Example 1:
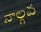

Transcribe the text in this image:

నాల్గవ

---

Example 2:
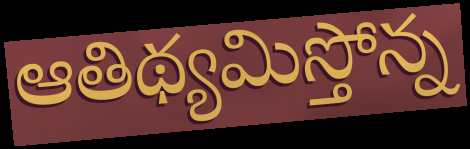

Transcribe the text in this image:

ఆతిథ్యమిస్తోన్న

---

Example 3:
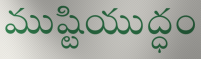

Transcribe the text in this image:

ముష్టియుద్ధం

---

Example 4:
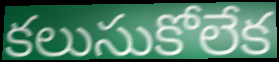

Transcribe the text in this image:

కలుసుకోలేక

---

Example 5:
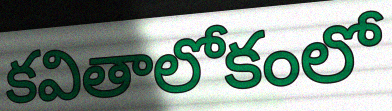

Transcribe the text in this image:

కవితాలోకంలో